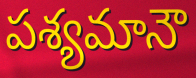
పశ్యమానౌ